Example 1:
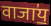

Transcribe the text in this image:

वाजा॑य॒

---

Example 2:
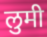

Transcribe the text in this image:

लुमी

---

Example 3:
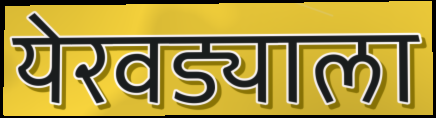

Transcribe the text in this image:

येरवड्याला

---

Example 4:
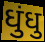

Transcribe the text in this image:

धुंधु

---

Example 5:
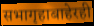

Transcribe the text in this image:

सभागृहाबाहेरही